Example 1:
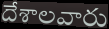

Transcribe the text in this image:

దేశాలవారు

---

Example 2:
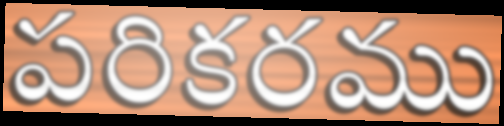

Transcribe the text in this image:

పరికరము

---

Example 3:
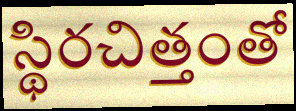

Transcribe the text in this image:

స్థిరచిత్తంతో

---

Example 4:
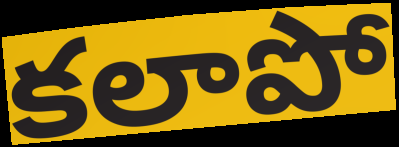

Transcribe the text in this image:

కలాపో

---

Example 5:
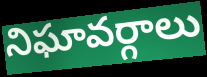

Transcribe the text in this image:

నిఘావర్గాలు